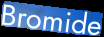
Bromide